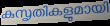
കുസൃതികളുമായി